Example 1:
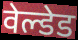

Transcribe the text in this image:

वेल्डेड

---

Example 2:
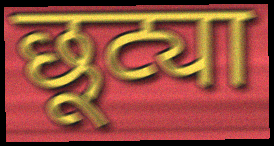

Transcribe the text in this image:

छूट्या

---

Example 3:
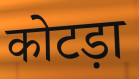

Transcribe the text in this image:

कोटड़ा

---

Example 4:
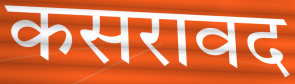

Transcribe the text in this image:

कसरावद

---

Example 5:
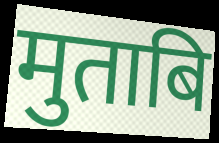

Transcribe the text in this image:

मुताबि